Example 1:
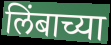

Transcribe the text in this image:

लिंबाच्या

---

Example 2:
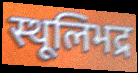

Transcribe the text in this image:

स्थूलिभद्र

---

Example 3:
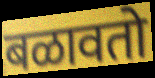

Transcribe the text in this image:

बळावतो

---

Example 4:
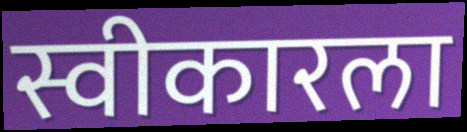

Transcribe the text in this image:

स्वीकारला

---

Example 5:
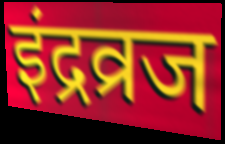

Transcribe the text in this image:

इंद्रव्रज